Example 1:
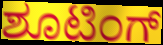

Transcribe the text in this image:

ಶೂಟಿಂಗ್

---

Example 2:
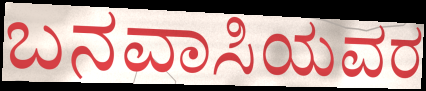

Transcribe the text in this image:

ಬನವಾಸಿಯವರ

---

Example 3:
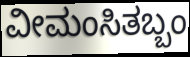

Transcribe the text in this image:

ವೀಮಂಸಿತಬ್ಬಂ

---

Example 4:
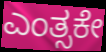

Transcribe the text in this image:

ಎಂತ್ಸಕೇ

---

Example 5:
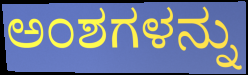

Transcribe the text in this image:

ಅಂಶಗಳನ್ನು